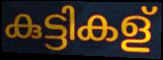
കുട്ടികള്